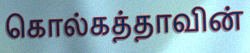
கொல்கத்தாவின்